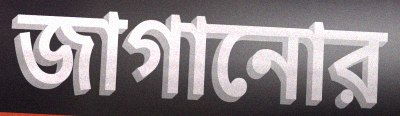
জাগানোর